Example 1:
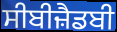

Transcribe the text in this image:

ਸੀਬੀਜ਼ੈਡਬੀ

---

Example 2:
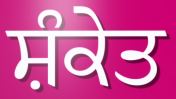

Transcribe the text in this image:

ਸ਼ੰਕੇਤ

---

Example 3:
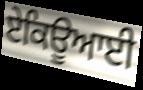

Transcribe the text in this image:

ਏਕਿਊਆਈ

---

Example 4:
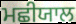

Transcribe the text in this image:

ਮਛੀਯਾਲ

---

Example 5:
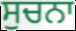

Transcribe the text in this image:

ਸੁਚਨਾ